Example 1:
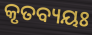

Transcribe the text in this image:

କୃତବ୍ୟୟଃ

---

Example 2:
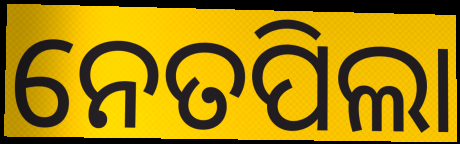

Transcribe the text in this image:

ନେତପିଲା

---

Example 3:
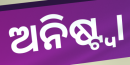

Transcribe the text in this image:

ଅନିଷ୍ଟ୍ୱା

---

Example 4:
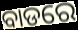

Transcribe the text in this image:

ବାଡରେ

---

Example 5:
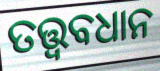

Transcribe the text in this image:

ତତ୍ତ୍ୱବଧାନ